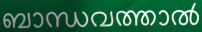
ബാന്ധവത്താൽ